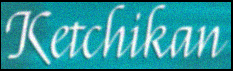
Ketchikan